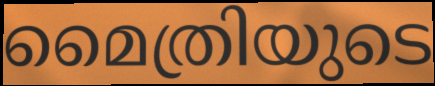
മൈത്രിയുടെ